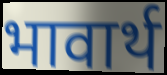
भावार्थ